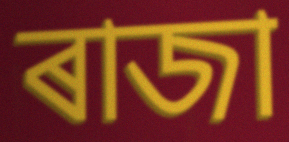
ৰাজা